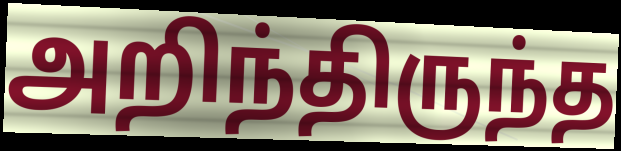
அறிந்திருந்த